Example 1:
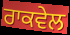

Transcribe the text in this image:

ਰਾਕਵੇਲ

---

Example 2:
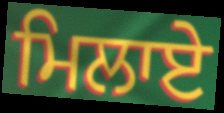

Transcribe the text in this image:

ਮਿਲਾਏ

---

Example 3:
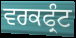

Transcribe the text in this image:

ਵਰਕਫ੍ਰੰਟ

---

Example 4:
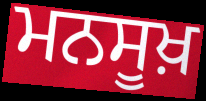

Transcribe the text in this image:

ਮਨਸੂਖ਼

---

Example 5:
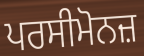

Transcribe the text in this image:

ਪਰਸੀਮੋਨਜ਼